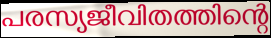
പരസ്യജീവിതത്തിന്റെ